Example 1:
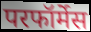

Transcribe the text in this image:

परफॉर्मेस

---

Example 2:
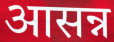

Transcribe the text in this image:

आसन्न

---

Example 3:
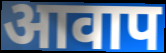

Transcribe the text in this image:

आवाप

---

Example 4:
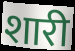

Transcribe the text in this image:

शारी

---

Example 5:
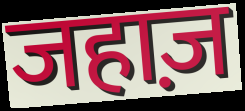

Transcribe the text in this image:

जहाज़